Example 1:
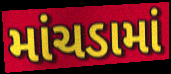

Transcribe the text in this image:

માંચડામાં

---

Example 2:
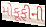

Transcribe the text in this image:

મોકૂફીની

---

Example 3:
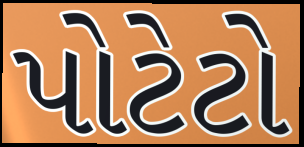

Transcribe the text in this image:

પોટેટો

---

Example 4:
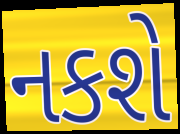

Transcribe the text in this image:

નકશે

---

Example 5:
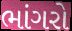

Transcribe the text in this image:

ભાંગરો